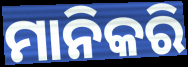
ମାନିକରି